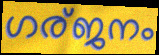
ഗര്ജനം